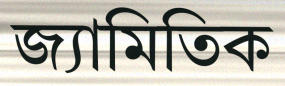
জ্যামিতিক